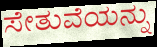
ಸೇತುವೆಯನ್ನು